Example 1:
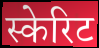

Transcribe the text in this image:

स्केरिट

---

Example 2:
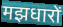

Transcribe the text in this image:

मझधारों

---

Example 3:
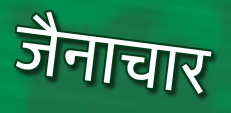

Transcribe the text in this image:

जैनाचार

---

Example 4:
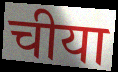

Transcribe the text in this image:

चीया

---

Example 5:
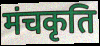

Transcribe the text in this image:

मंचकृति